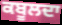
ਕਬੂਲਦਾ